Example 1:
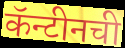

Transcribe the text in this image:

कॅन्टीनची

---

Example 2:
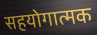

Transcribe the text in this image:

सहयोगात्मक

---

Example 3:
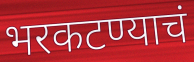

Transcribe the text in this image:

भरकटण्याचं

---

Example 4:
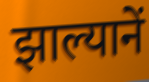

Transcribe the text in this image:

झाल्यानें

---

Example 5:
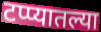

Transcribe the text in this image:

टप्प्यातल्या